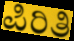
ಪಿರಿತಿ